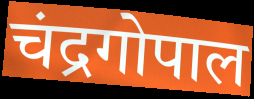
चंद्रगोपाल